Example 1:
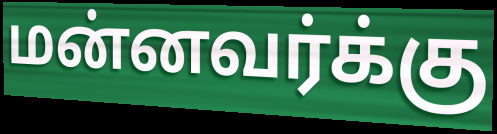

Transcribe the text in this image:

மன்னவர்க்கு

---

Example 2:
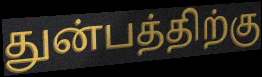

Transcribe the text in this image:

துன்பத்திற்கு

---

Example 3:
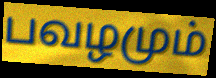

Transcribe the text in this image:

பவழமும்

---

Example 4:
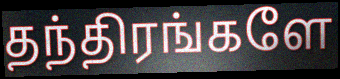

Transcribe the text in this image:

தந்திரங்களே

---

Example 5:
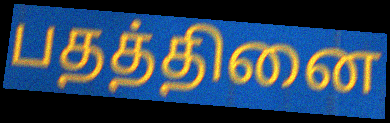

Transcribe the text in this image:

பதத்தினை